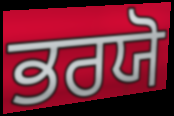
ਭਰਯੋ